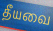
தீயவை